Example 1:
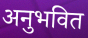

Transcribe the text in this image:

अनुभवित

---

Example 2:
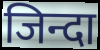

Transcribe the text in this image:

जिन्‍दा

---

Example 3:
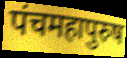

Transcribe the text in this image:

पंचमहापुरुष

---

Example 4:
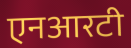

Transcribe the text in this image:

एनआरटी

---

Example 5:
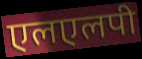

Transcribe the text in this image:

एलएलपी